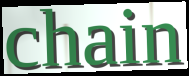
chain